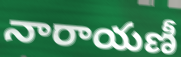
నారాయణీ